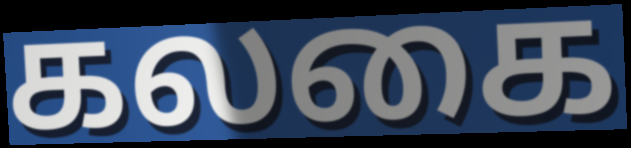
கலகை